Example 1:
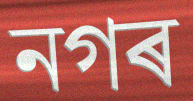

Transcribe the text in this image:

নগৰ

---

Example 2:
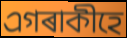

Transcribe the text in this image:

এগৰাকীহে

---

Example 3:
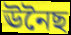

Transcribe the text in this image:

ঊনৈছ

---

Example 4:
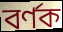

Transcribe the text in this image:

বৰ্ণক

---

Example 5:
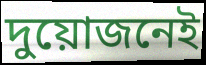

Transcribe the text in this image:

দুয়োজনেই